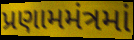
પ્રણામમંત્રમાં